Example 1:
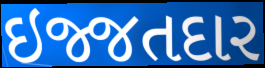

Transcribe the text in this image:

ઇજ્જતદાર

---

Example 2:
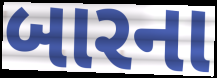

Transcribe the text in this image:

બારના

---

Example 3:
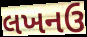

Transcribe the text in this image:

લખનઉ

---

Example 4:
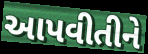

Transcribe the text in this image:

આપવીતીને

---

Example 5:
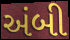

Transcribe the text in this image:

અંબી